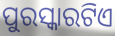
ପୁରସ୍କାରଟିଏ